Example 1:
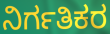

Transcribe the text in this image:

ನಿರ್ಗತಿಕರ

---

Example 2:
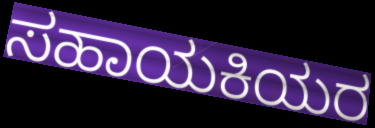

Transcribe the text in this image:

ಸಹಾಯಕಿಯರ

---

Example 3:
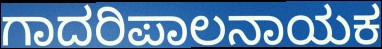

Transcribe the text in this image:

ಗಾದರಿಪಾಲನಾಯಕ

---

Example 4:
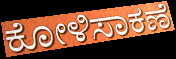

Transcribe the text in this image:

ಕೋಳಿಸಾಕಣೆ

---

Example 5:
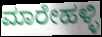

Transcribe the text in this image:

ಮಾರೇಹಳ್ಳಿ